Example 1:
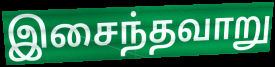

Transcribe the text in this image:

இசைந்தவாறு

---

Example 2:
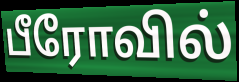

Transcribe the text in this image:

பீரோவில்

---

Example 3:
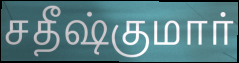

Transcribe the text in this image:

சதீஷ்குமார்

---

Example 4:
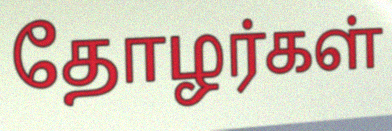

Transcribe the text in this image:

தோழர்கள்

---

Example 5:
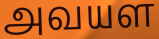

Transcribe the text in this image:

அவயள